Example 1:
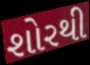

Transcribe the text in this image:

શોરથી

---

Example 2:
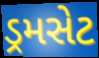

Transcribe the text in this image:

ડ્રમસેટ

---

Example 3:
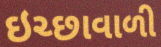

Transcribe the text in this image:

ઇચ્છાવાળી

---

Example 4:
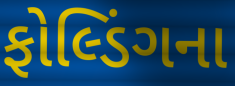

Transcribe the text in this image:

ફોલ્ડિંગના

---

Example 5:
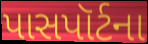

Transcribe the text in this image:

પાસપૉર્ટના